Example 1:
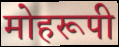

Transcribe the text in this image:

मोहरूपी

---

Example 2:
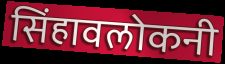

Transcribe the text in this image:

सिंहावलोकनी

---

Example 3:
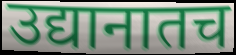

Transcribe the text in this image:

उद्यानातच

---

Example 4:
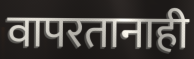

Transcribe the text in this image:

वापरतानाही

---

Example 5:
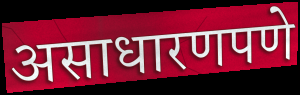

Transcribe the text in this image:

असाधारणपणे